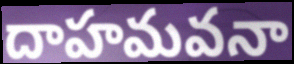
దాహమవనా